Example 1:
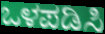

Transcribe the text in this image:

ಒಳಪಡಿಸಿ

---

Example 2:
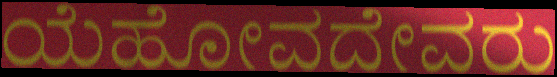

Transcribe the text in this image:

ಯೆಹೋವದೇವರು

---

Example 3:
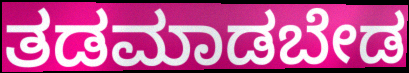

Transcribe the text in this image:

ತಡಮಾಡಬೇಡ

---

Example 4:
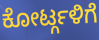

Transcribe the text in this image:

ಕೋರ್ಟ್ಗಳಿಗೆ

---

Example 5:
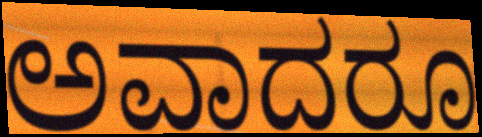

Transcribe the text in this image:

ಅವಾದರೂ